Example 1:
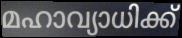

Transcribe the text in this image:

മഹാവ്യാധിക്ക്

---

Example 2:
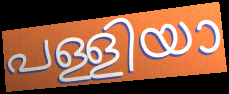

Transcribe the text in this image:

പള്ളിയാ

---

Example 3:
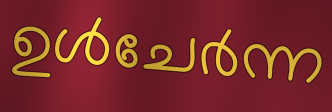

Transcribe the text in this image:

ഉൾചേർന്ന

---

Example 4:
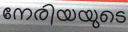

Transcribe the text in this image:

നേരിയയുടെ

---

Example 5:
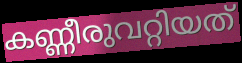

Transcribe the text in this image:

കണ്ണീരുവറ്റിയത്